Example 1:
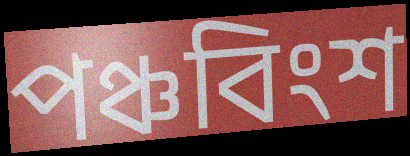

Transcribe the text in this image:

পঞ্চবিংশ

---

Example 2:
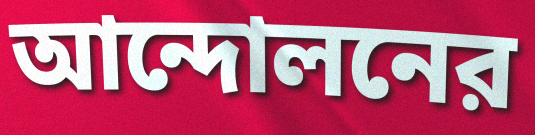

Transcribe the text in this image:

আন্দোলনের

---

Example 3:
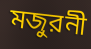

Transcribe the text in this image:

মজুরনী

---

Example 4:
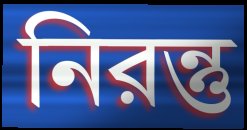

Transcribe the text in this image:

নিরন্তু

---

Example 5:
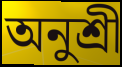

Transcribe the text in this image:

অনুশ্রী